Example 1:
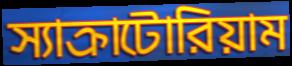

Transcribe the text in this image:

স্যাক্রাটোরিয়াম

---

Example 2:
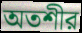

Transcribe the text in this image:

অতশীর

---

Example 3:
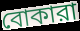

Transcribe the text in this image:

বোকারা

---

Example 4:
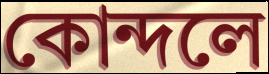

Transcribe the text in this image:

কোন্দলে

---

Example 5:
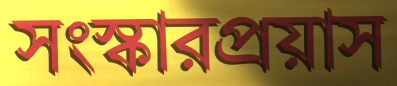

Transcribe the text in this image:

সংস্কারপ্রয়াস